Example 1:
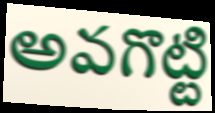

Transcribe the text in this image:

అవగొట్టి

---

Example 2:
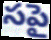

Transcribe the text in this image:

సపై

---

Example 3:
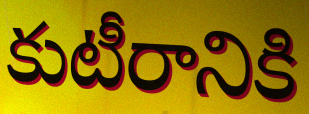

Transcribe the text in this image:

కుటీరానికి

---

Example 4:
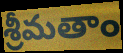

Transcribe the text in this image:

శ్రీమతాం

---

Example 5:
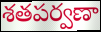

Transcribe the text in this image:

శతపర్వణా